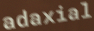
adaxial